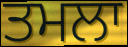
ਤਮਲਾ